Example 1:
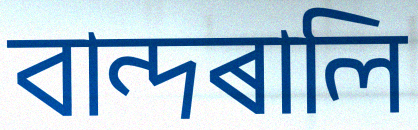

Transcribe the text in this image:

বান্দৰালি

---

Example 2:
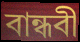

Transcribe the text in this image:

বান্ধবী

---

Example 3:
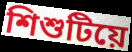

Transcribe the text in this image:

শিশুটিয়ে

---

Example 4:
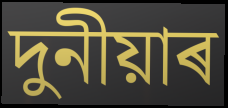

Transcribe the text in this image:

দুনীয়াৰ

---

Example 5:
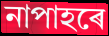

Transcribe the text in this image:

নাপাহৰে